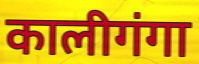
कालीगंगा